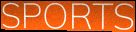
SPORTS